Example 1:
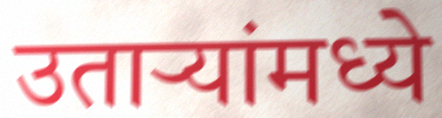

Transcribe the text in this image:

उतार्‍यांमध्ये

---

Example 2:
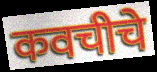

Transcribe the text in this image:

कवचीचे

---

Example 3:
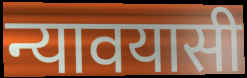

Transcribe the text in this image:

न्यावयासी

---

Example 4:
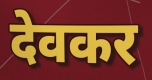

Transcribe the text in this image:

देवकर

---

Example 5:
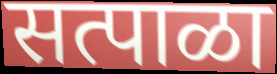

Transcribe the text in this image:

सत्पाळा